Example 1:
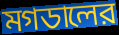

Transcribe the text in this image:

মগডালের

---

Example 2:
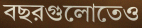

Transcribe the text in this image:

বছরগুলোতেও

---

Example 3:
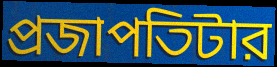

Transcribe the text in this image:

প্রজাপতিটার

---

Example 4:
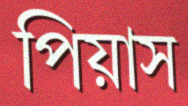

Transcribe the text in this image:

পিয়াস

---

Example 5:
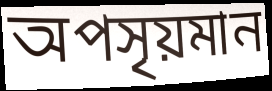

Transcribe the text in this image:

অপসৃয়মান